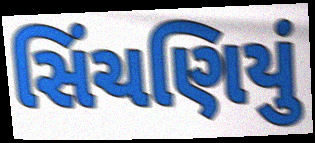
સિંચણિયું